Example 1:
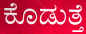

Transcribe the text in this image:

ಕೊಡುತ್ತೆ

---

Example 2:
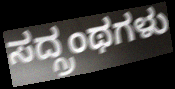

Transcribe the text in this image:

ಸದ್ಗ್ರಂಥಗಳು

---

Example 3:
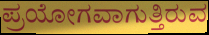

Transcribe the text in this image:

ಪ್ರಯೋಗವಾಗುತ್ತಿರುವ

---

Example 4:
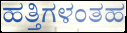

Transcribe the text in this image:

ಹತ್ತಿಗಳಂತಹ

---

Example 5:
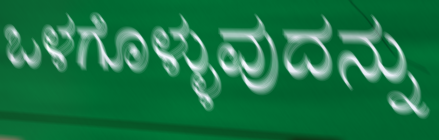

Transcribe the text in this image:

ಒಳಗೊಳ್ಳುವುದನ್ನು